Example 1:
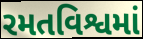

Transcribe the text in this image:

રમતવિશ્વમાં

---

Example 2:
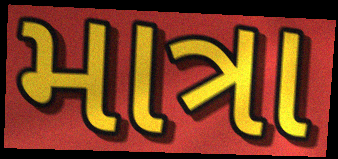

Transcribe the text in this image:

માત્રા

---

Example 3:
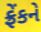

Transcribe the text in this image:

ફ્રેંકને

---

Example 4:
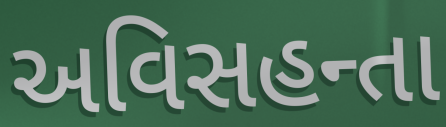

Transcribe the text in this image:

અવિસહન્તા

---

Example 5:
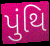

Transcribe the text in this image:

પુંથિ